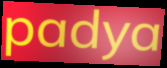
padya